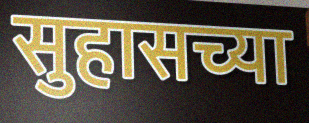
सुहासच्या